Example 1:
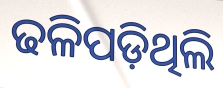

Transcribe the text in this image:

ଢଳିପଡ଼ିଥିଲି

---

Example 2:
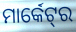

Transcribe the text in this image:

ମାର୍କେଟ୍‌ର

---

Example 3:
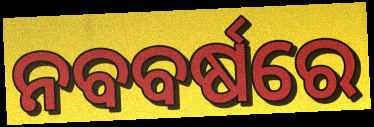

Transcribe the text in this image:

ନବବର୍ଷରେ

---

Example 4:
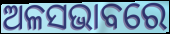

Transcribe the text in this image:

ଅଳସଭାବରେ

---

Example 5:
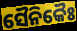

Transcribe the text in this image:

ସୈନିକୈଃ